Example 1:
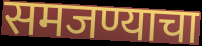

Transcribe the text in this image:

समजण्याचा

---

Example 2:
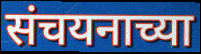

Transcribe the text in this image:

संचयनाच्या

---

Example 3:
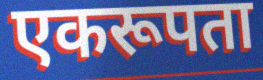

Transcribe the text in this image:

एकरूपता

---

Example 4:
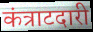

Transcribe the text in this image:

कंत्राटदारी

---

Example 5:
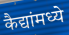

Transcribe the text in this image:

कैद्यांमध्ये